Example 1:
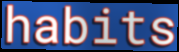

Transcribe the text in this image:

habits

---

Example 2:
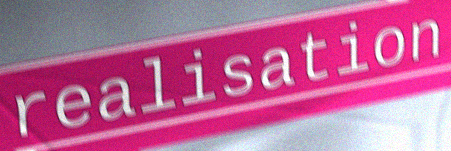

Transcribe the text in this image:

realisation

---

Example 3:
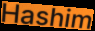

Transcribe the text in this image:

Hashim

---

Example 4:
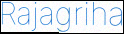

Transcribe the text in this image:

Rajagriha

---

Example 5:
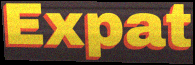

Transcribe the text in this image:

Expat